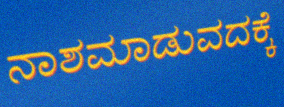
ನಾಶಮಾಡುವದಕ್ಕೆ